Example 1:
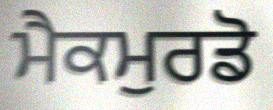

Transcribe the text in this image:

ਮੈਕਮੁਰਡੋ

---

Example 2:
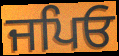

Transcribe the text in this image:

ਜਪਿਓ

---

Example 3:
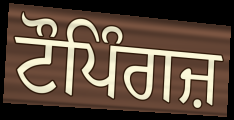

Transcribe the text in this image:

ਟੌਪਿੰਗਜ਼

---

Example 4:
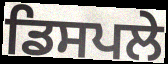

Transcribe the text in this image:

ਡਿਸਪਲੇ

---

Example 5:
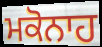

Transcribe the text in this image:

ਮਕੋਨਾਹ